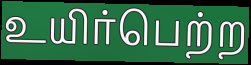
உயிர்பெற்ற